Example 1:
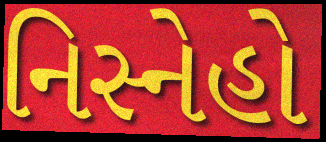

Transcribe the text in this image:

નિસ્નેહો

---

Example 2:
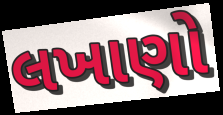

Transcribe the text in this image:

લખાણો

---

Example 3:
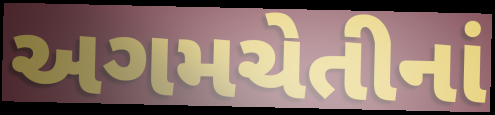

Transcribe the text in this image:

અગમચેતીનાં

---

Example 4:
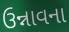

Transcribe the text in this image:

ઉન્નાવના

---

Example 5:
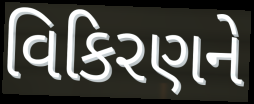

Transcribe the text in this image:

વિકિરણને